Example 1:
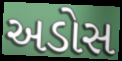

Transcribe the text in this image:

અડોસ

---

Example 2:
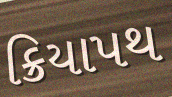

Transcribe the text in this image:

ક્રિયાપથ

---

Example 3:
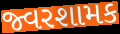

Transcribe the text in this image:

જ્વરશામક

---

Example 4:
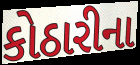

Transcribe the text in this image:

કોઠારીના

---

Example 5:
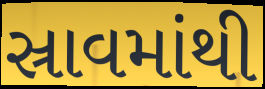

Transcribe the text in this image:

સ્રાવમાંથી